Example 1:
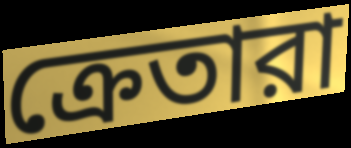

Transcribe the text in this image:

ক্রেতারা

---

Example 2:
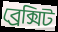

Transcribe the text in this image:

ব্রেক্সিট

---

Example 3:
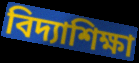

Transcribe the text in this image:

বিদ্যাশিক্ষা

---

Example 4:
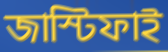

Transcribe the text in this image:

জাস্টিফাই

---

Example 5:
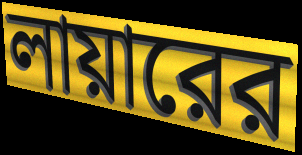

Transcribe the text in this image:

লায়ারের